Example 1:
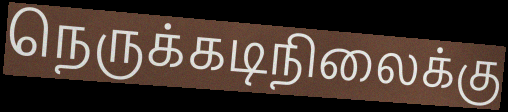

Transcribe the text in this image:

நெருக்கடிநிலைக்கு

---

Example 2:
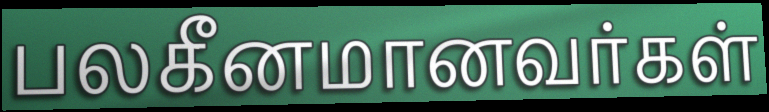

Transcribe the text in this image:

பலகீனமானவர்கள்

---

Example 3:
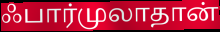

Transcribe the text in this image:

ஃபார்முலாதான்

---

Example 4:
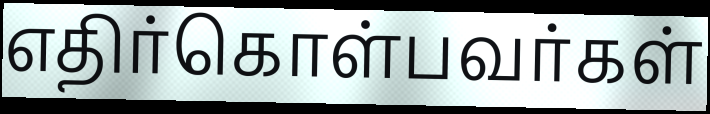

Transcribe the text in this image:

எதிர்கொள்பவர்கள்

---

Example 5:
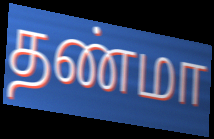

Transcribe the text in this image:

தண்மா